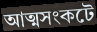
আত্মসংকটে